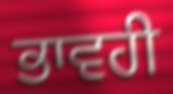
ਭਾਵਹੀ